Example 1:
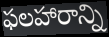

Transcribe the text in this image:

ఫలహారాన్ని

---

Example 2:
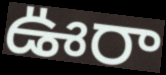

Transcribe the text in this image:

ఊరా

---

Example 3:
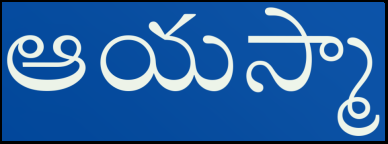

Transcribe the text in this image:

ఆయస్మా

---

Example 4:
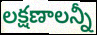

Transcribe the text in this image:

లక్షణాలన్నీ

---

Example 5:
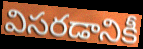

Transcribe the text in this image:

విసరడానికీ